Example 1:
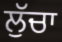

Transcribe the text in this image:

ਲੁੱਚਾ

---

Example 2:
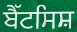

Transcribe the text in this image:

ਬੈੱਟਸਿਸ਼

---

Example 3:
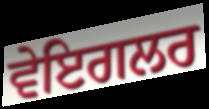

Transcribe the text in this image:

ਵੇਇਗਲਰ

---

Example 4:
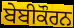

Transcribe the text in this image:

ਬੇਬੀਕੌਰਨ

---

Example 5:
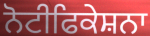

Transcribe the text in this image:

ਨੋਟੀਫਿਕੇਸ਼ਨਾ